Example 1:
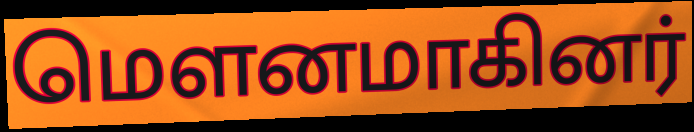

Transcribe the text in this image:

மௌனமாகினர்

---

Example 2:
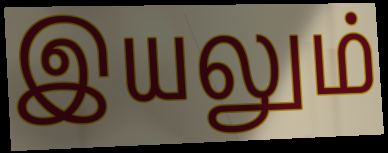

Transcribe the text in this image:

இயலும்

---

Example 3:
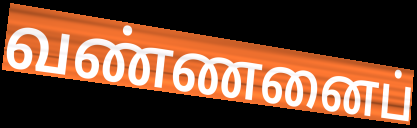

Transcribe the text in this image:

வண்ணனைப்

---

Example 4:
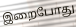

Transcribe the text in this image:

இறைபோது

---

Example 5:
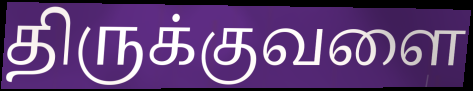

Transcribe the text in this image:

திருக்குவளை